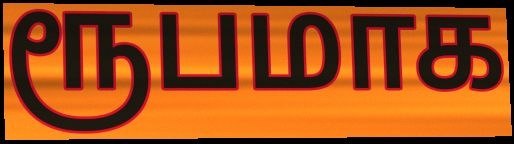
ரூபமாக